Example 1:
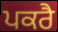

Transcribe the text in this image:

ਪਕਰੈ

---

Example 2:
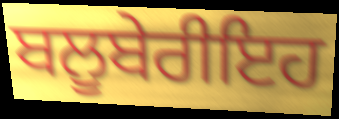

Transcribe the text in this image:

ਬਲੂਬੇਰੀਇਹ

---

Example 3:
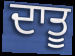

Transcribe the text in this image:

ਦਾਤੂ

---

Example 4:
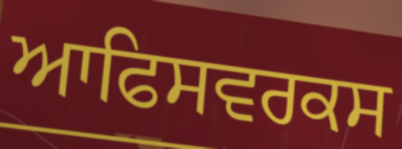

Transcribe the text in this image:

ਆਫਿਸਵਰਕਸ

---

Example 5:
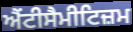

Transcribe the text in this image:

ਐਂਟੀਸੈਮੀਟਿਜ਼ਮ